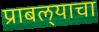
प्राबल्याचा